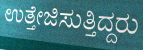
ಉತ್ತೇಜಿಸುತ್ತಿದ್ದರು